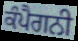
ਕੰਪੈਗਨੀ